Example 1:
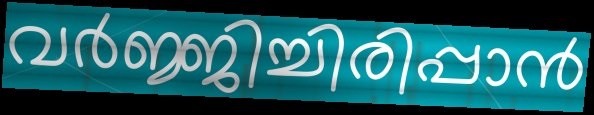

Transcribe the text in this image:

വർജ്ജിച്ചിരിപ്പാൻ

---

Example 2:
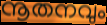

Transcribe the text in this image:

നൂതനവും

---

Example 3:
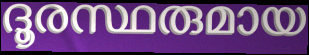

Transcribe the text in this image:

ദൂരസ്ഥരുമായ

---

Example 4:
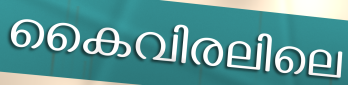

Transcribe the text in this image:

കൈവിരലിലെ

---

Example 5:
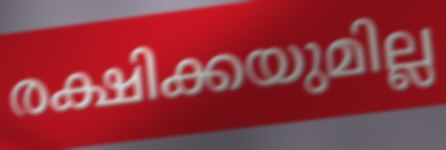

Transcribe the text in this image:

രക്ഷിക്കയുമില്ല